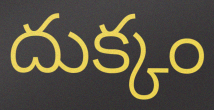
దుక్కం